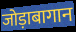
जोड़ाबागान